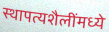
स्थापत्यशैलींमध्ये